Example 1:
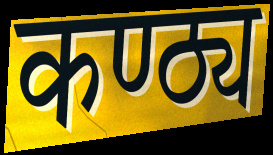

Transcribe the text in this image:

कण्ठ्य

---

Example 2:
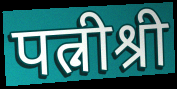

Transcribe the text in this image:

पत्नीश्री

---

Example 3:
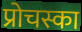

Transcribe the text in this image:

प्रोचस्का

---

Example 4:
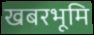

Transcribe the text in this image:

खबरभूमि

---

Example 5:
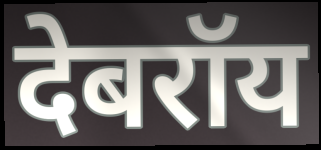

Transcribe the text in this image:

देबरॉय